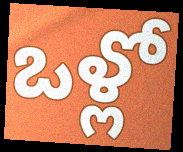
ఒళ్లో